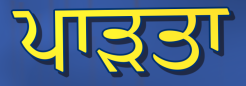
ਪਾੜਤਾ